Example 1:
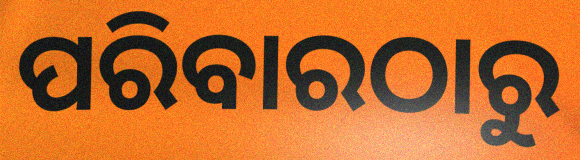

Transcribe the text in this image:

ପରିବାରଠାରୁ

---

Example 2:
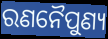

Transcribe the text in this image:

ରଣନୈପୁଣ୍ୟ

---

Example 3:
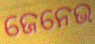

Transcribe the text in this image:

ଜେନେଭ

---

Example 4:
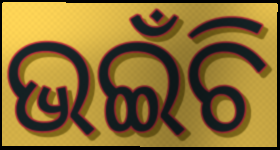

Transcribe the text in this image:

ଭଇଁଚି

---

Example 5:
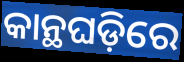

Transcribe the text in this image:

କାନ୍ଥଘଡ଼ିରେ